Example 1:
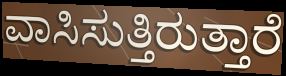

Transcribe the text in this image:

ವಾಸಿಸುತ್ತಿರುತ್ತಾರೆ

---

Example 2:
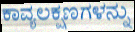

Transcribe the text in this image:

ಕಾವ್ಯಲಕ್ಷಣಗಳನ್ನು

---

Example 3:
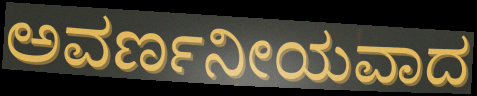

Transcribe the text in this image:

ಅವರ್ಣನೀಯವಾದ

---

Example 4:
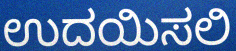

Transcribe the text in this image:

ಉದಯಿಸಲಿ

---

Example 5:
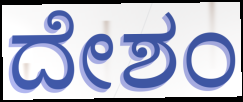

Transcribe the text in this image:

ದೇಶಂ